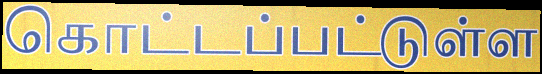
கொட்டப்பட்டுள்ள